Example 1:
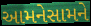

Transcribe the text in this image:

આમનેસામને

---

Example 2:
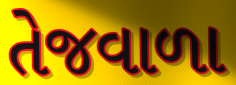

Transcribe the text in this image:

તેજવાળા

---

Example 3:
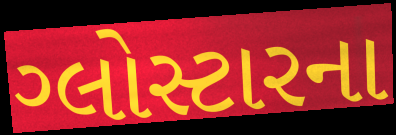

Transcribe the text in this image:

ગ્લોસ્ટારના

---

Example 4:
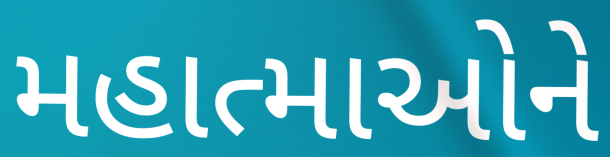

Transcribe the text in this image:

મહાત્માઓને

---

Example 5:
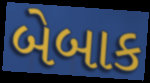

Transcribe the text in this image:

બેબાક